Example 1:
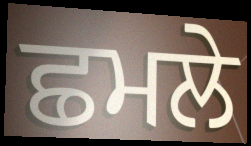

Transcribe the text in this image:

ਛਮਲੇ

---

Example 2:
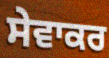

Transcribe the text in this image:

ਸੇਵਾਕਰ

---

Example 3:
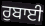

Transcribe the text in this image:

ਰੁਬਾਈ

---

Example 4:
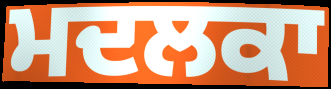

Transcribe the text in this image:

ਮਦਲਕਾ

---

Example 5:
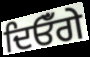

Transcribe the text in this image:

ਦਿਓਁਗੇ